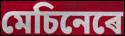
মেচিনেৰে